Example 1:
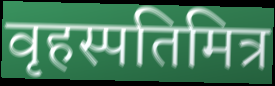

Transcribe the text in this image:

वृहस्पतिमित्र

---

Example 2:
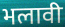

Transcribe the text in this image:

भलावी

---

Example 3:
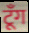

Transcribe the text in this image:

टूँग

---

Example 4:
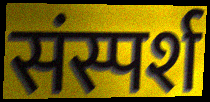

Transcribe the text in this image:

संस्पर्श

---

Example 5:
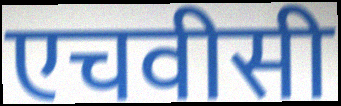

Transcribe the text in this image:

एचवीसी